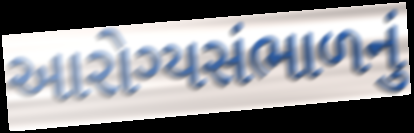
આરોગ્યસંભાળનું